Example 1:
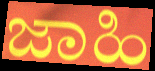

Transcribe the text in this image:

ಜಾಹಿ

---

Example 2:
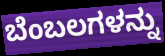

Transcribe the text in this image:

ಬೆಂಬಲಗಳನ್ನು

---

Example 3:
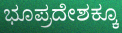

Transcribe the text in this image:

ಭೂಪ್ರದೇಶಕ್ಕೂ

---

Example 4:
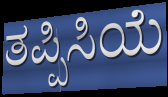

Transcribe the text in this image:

ತಪ್ಪಿಸಿಯೆ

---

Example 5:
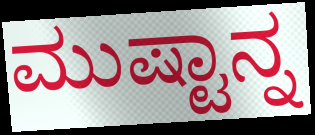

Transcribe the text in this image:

ಮುಷ್ಟಾನ್ನ